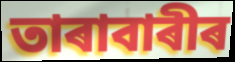
তাৰাবাৰীৰ